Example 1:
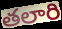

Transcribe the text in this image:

తలారి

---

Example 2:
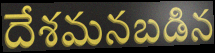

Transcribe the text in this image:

దేశమనబడిన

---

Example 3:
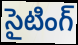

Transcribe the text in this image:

సైటింగ్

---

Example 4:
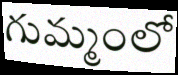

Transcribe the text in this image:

గుమ్మంలో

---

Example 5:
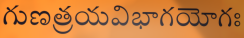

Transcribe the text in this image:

గుణత్రయవిభాగయోగః